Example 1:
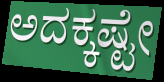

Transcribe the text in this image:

ಅದಕ್ಕಷ್ಟೇ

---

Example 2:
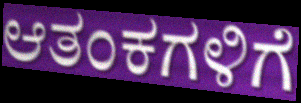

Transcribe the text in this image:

ಆತಂಕಗಳಿಗೆ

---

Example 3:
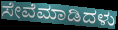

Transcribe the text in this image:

ಸೇವೆಮಾಡಿದಳು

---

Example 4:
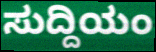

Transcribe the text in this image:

ಸುದ್ದಿಯಂ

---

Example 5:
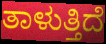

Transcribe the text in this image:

ತಾಳುತ್ತಿದೆ